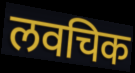
लवचिक